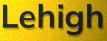
Lehigh